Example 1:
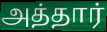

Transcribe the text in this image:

அத்தார்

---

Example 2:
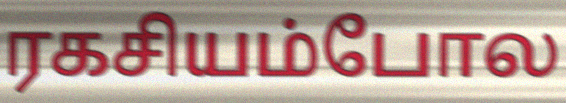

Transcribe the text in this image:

ரகசியம்போல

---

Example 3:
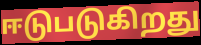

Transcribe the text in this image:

ஈடுபடுகிறது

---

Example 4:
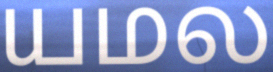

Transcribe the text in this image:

யமல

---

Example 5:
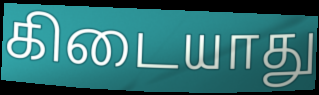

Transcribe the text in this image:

கிடையாது